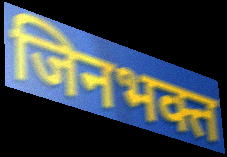
जिनभक्त